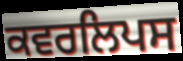
ਕਵਰਲਿਪਸ